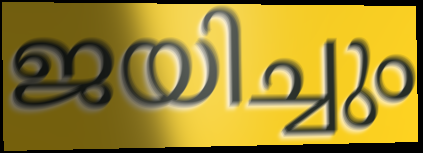
ജയിച്ചും